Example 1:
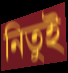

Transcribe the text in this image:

নিতুই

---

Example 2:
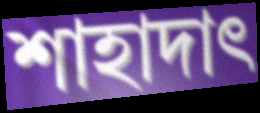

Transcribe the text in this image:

শাহাদাৎ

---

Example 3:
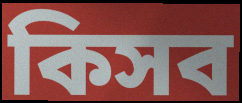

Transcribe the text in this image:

কিসব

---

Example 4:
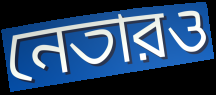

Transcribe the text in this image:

নেতারও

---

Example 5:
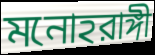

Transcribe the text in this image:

মনোহরাঙ্গী